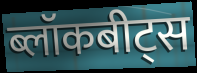
ब्लॉकबीट्स